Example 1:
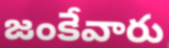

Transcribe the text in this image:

జంకేవారు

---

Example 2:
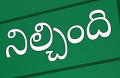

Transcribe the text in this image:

నిల్చింది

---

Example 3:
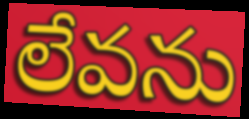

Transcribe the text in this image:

లేవను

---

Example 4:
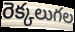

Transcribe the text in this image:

రెక్కలుగల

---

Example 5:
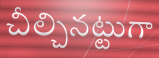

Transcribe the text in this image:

చీల్చినట్టుగా